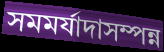
সমমর্যাদাসম্পন্ন